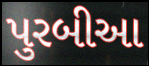
પુરબીઆ